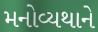
મનોવ્યથાને